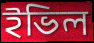
ইভিল